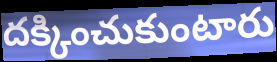
దక్కించుకుంటారు